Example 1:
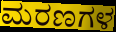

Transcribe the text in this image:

ಮರಣಗಳ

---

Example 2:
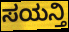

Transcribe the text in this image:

ಸಯನ್ತಿ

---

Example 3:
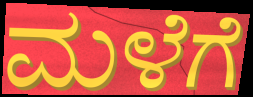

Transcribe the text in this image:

ಮಳೆಗೆ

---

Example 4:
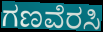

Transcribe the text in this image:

ಗಣವೆರಸಿ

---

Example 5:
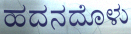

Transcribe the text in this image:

ಹದನದೊಳು